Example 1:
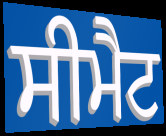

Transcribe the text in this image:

ਸੀਮੈਟ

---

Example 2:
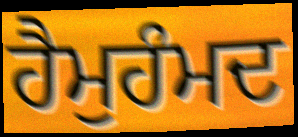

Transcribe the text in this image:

ਹੈਮੁਹੰਮਦ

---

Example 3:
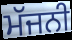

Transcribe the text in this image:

ਮੱਜਨੀ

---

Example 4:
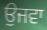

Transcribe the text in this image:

ਉਜਵਾ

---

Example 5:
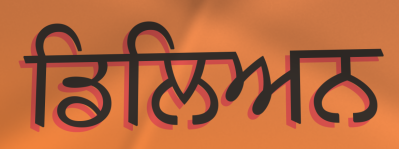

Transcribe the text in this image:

ਡਿਲਿਅਨ